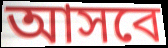
আসবে